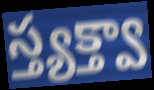
స్త్యక్త్వా